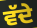
ਵੱਦੇ